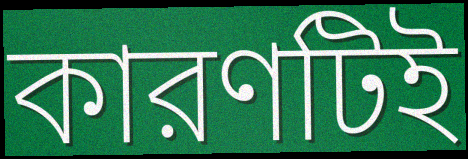
কারণটিই